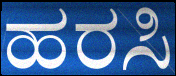
ಹರಸಿ